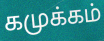
கமுக்கம்